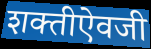
शक्तीऐवजी